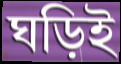
ঘড়িই